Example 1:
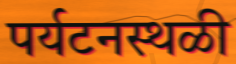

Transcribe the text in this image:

पर्यटनस्थळी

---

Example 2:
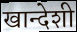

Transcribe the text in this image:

खान्देशी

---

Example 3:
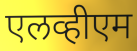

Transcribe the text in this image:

एलव्हीएम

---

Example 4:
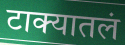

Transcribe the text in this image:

टाक्यातलं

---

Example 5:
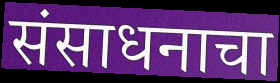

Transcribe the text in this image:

संसाधनाचा